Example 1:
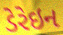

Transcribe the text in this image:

ડેરેઇન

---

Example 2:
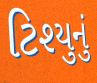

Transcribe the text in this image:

ટિશ્યુનું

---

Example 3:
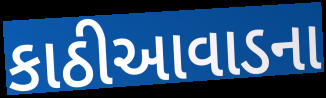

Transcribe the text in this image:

કાઠીઆવાડના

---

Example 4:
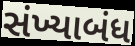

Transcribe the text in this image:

સંખ્યાબંધ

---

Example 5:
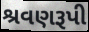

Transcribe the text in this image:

શ્રવણરૂપી